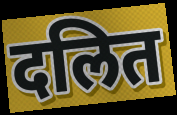
दलित